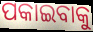
ପକାଇବାକୁ